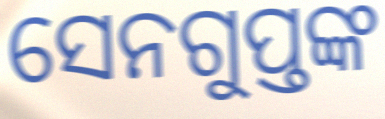
ସେନଗୁପ୍ତଙ୍କ